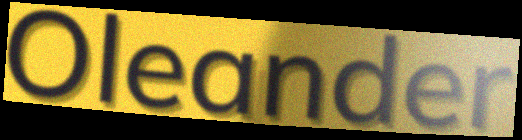
Oleander